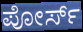
ಪೋರ್ಸ್